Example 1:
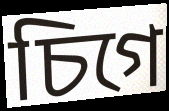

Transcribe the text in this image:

চিগে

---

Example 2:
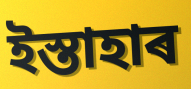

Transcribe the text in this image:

ইস্তাহাৰ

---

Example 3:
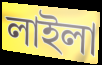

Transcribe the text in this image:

লাইলা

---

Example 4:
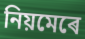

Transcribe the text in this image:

নিয়মেৰে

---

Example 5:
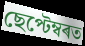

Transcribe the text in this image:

ছেপ্টেম্বৰত